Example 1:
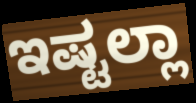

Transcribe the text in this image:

ಇಷ್ಟಲ್ಲಾ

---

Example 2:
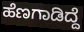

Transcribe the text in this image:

ಹೆಣಗಾಡಿದ್ದೆ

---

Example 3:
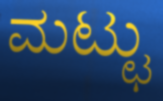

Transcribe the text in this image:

ಮಟ್ಟು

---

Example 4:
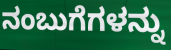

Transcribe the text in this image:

ನಂಬುಗೆಗಳನ್ನು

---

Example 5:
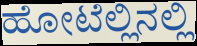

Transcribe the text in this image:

ಹೋಟೆಲ್ಲಿನಲ್ಲಿ